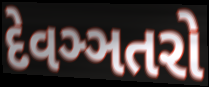
દેવઞ્ઞતરો